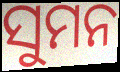
ସୁମନ